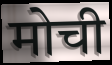
मोची